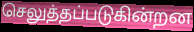
செலுத்தப்படுகின்றன